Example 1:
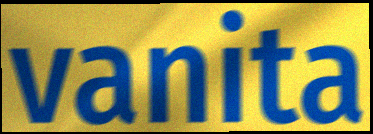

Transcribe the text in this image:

vanita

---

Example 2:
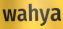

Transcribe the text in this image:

wahya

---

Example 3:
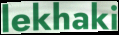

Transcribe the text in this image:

lekhaki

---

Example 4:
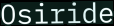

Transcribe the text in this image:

Osiride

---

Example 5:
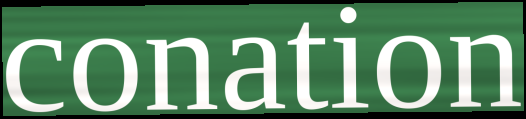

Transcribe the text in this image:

conation